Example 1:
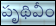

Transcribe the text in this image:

పృథివీం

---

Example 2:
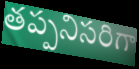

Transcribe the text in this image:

తప్పనిసరిగా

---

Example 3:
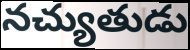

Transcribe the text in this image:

నచ్యుతుడు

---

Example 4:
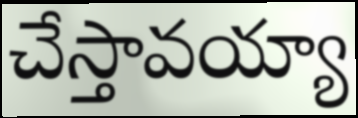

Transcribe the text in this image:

చేస్తావయ్యా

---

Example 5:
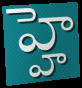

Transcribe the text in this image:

హ్హె